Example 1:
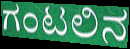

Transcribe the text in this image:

ಗಂಟಲಿನ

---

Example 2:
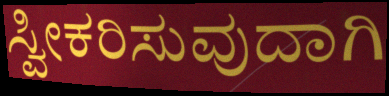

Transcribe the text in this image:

ಸ್ವೀಕರಿಸುವುದಾಗಿ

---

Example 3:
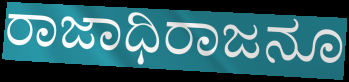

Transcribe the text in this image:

ರಾಜಾಧಿರಾಜನೂ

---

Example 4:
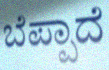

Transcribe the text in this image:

ಬೆಪ್ಪಾದೆ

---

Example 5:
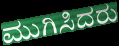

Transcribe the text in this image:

ಮುಗಿಸಿದರು